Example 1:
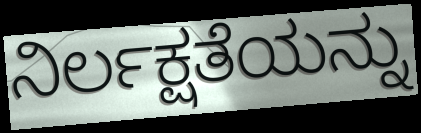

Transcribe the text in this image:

ನಿರ್ಲಕ್ಷತೆಯನ್ನು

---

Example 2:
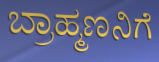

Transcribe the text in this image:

ಬ್ರಾಹ್ಮಣನಿಗೆ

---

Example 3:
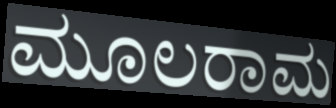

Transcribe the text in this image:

ಮೂಲರಾಮ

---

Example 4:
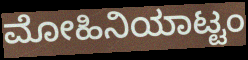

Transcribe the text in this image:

ಮೋಹಿನಿಯಾಟ್ಟಂ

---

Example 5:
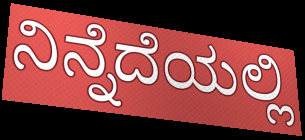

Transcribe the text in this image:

ನಿನ್ನೆದೆಯಲ್ಲಿ